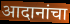
आदानांचा